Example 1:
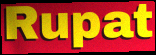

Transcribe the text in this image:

Rupat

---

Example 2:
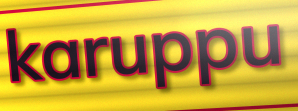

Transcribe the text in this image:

karuppu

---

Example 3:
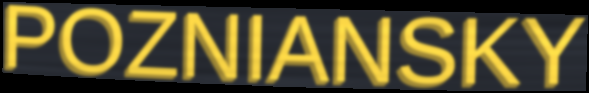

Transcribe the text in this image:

POZNIANSKY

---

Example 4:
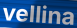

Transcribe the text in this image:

vellina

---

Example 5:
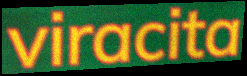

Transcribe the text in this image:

viracita